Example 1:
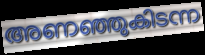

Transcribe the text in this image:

അണഞ്ഞുകിടന്ന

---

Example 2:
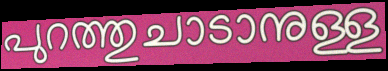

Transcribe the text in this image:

പുറത്തുചാടാനുള്ള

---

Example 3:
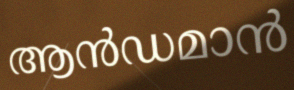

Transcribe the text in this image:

ആൻഡമാൻ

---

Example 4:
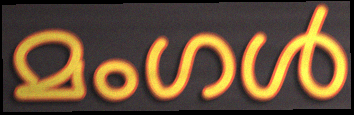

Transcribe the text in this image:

മംഗൾ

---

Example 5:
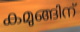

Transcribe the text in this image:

കമുങ്ങിന്